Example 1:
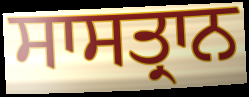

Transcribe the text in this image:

ਸਾਸਤ੍ਰਾਨ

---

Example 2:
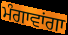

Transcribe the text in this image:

ਮੰਗਾਵਾਂਗਾ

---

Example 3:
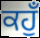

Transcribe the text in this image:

ਕਹੁਁ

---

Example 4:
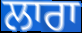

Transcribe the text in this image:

ਲਾਰਾ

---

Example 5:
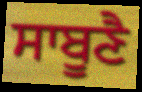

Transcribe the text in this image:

ਸਾਬੂਣੈ